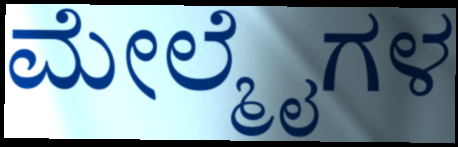
ಮೇಲ್ಮೈಗಳ